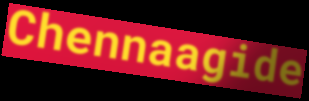
Chennaagide